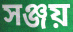
সঞ্জয়